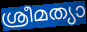
ശ്രീമത്യാ